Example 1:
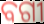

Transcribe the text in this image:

ବଗୀ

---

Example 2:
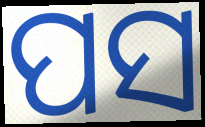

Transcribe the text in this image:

ପସ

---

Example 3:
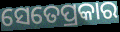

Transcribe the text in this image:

ସେତେପ୍ରକାର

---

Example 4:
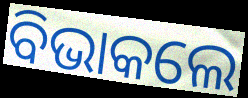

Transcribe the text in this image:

ବିଭାକଲେ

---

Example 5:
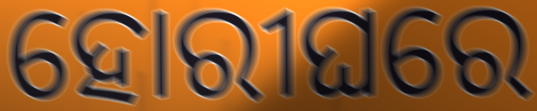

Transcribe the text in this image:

ହୋରୀଘରେ